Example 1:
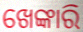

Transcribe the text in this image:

ଖେଙ୍କାରି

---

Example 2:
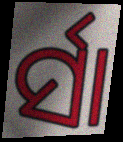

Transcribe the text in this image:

ର୍ସା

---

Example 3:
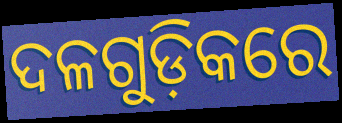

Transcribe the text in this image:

ଦଳଗୁଡ଼ିକରେ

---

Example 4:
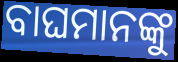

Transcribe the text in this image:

ବାଘମାନଙ୍କୁ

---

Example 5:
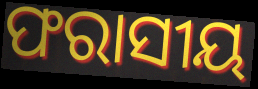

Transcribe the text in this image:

ଫରାସୀୟ